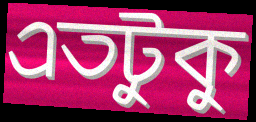
এতটুকু